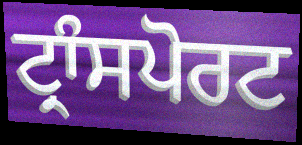
ਟ੍ਰਾੰਸਪੋਰਟ